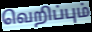
வெறிப்பும்